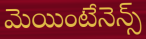
మెయింటేనెన్స్